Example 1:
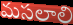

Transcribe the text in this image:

మసలాలి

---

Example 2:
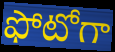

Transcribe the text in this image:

ఫోటోగా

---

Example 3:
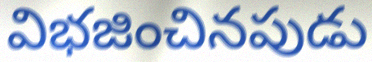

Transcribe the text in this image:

విభజించినపుడు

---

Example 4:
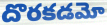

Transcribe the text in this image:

దొరకడమో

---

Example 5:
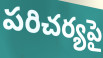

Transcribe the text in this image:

పరిచర్యపై